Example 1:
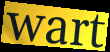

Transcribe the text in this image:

wart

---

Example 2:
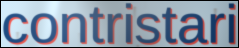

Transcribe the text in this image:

contristari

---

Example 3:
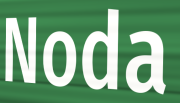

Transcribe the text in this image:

Noda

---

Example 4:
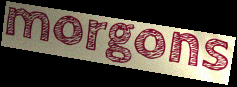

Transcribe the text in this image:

morgons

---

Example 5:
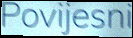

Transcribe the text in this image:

Povijesni